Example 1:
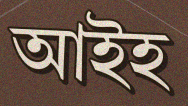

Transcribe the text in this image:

আইহ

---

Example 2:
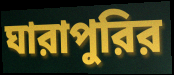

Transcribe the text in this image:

ঘারাপুরির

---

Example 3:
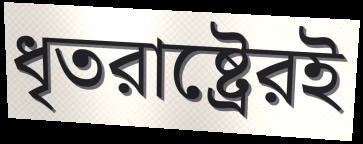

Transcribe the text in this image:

ধৃতরাষ্ট্রেরই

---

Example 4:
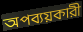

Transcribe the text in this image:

অপব্যয়কারী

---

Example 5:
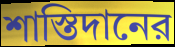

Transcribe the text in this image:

শাস্তিদানের